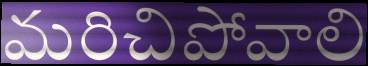
మరిచిపోవాలి